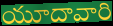
యూదావారి